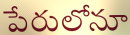
పేరులోనూ